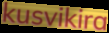
kusvikira